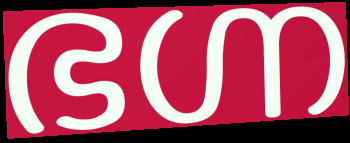
ഭഗ്ന